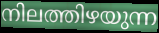
നിലത്തിഴയുന്ന